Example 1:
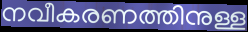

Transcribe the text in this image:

നവീകരണത്തിനുള്ള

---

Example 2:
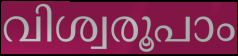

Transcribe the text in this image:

വിശ്വരൂപാം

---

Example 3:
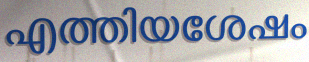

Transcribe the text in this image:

എത്തിയശേഷം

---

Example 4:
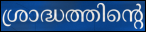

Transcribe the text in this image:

ശ്രാദ്ധത്തിന്റെ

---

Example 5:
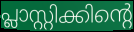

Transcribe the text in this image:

പ്ലാസ്റ്റിക്കിന്റെ